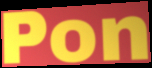
Pon